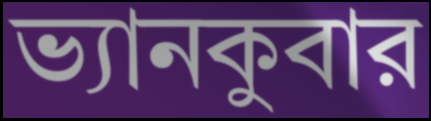
ভ্যানকুবার